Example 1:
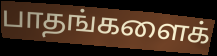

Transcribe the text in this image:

பாதங்களைக்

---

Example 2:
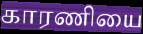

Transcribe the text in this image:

காரணியை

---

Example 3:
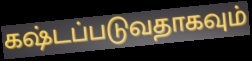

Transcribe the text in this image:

கஷ்டப்படுவதாகவும்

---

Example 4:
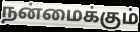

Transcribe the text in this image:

நன்மைக்கும்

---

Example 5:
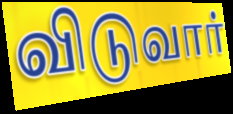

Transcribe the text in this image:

விடுவார்